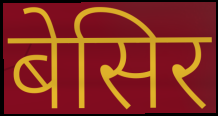
बेसिर